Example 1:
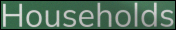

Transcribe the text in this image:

Households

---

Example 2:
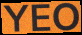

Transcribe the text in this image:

YEO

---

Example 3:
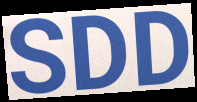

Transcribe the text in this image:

SDD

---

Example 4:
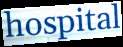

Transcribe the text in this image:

hospital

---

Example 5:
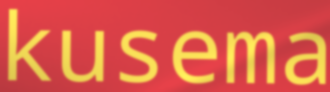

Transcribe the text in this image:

kusema